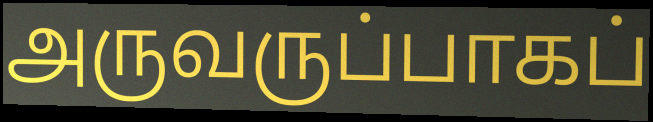
அருவருப்பாகப்